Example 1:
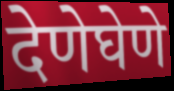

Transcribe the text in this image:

देणेघेणे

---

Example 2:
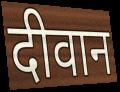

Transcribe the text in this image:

दीवान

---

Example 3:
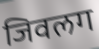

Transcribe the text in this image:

जिवलग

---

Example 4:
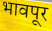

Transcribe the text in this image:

भावपूर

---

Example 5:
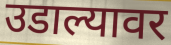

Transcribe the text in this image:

उडाल्यावर